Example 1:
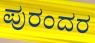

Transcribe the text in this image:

ಪುರಂದರ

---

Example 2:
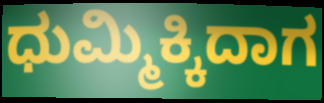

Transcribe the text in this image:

ಧುಮ್ಮಿಕ್ಕಿದಾಗ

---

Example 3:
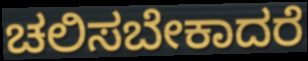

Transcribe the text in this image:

ಚಲಿಸಬೇಕಾದರೆ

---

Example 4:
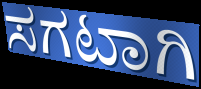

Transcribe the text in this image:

ಸಗಟಾಗಿ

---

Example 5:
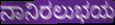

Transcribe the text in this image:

ನಾನಿರಲುಭಯ